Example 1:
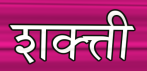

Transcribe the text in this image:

शक्त्ती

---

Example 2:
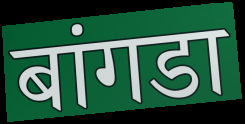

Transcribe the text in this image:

बांगडा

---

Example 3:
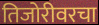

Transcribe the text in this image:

तिजोरीवरचा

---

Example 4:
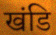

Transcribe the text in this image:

खंडि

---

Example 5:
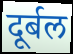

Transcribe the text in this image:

दूर्बल